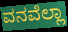
ವನವೆಲ್ಲಾ